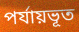
পর্যায়ভূত